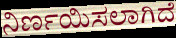
ನಿರ್ಣಯಿಸಲಾಗಿದೆ